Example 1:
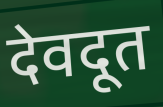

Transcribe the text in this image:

देवदूत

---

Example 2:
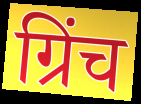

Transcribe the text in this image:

ग्रिंच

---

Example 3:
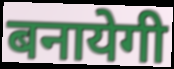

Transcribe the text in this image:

बनायेगी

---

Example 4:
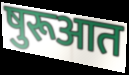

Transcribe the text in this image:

षुरूआत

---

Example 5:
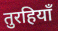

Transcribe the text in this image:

तुरहियाँ